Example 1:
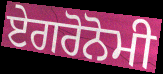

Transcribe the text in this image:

ਏਗਰੋਨੋਮੀ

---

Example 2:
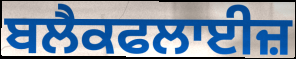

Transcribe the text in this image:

ਬਲੈਕਫਲਾਈਜ਼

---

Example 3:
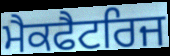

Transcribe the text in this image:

ਮੈਕਫੈਟਰਿਜ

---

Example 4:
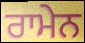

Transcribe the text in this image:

ਰਾਮੇਨ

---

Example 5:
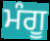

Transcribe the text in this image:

ਮੰਗੂ